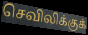
செவிலிக்குக்